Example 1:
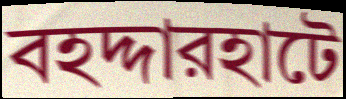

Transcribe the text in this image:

বহদ্দারহাটে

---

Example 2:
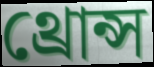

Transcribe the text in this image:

থ্রোন্স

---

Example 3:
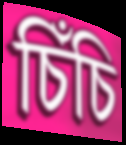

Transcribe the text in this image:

চিঁচি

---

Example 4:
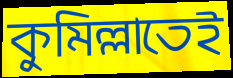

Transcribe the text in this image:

কুমিল্লাতেই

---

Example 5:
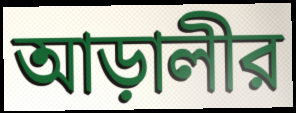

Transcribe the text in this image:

আড়ালীর